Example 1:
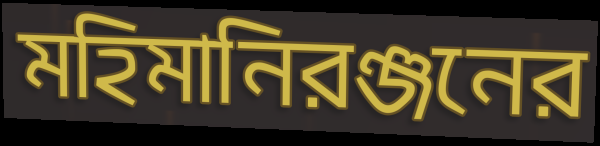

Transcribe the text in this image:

মহিমানিরঞ্জনের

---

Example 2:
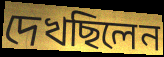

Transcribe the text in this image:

দেখছিলেন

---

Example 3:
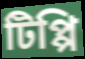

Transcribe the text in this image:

টিপ্পি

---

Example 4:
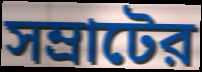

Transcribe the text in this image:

সম্রাটের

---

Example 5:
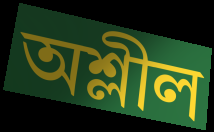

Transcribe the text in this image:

অশ্লীল